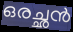
ഒരച്ഛൻ